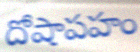
దోషాపహం